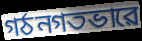
গঠনগতভাৱে